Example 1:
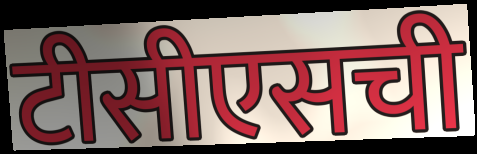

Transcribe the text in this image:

टीसीएसची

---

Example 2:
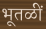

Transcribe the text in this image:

भूतळीं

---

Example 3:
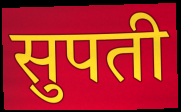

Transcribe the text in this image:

सुपती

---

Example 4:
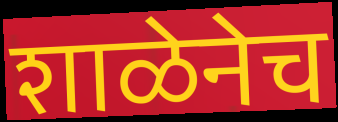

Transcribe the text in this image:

शाळेनेच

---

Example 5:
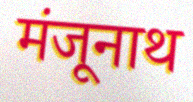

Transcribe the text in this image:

मंजूनाथ